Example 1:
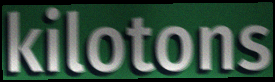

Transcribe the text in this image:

kilotons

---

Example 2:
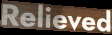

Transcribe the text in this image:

Relieved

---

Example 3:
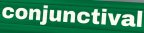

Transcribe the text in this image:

conjunctival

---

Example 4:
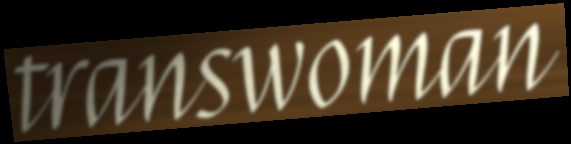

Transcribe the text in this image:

transwoman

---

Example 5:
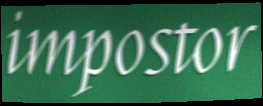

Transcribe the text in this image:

impostor